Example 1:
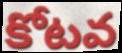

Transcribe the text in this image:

కోటవ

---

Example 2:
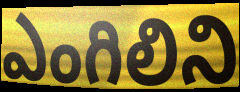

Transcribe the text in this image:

ఎంగిలిని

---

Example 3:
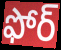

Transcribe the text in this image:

ఫోర్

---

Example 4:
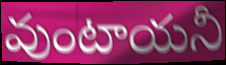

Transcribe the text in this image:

వుంటాయనీ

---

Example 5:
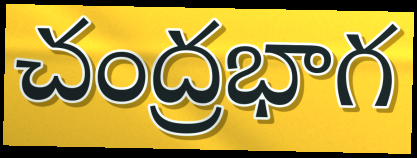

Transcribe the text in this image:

చంద్రభాగ